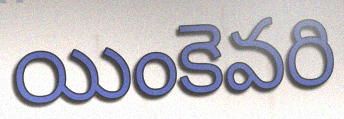
యింకెవరి